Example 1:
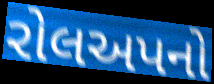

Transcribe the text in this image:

રોલઅપનો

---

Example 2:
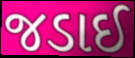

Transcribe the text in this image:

જડાઈ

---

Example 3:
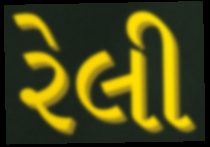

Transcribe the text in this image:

રેલી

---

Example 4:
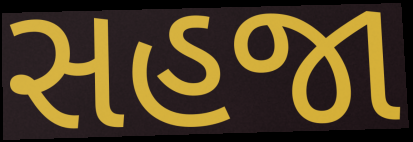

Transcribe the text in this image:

સહજા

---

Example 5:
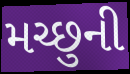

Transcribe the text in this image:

મચ્છુની